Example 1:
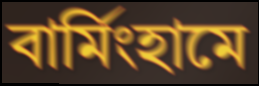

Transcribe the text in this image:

বার্মিংহামে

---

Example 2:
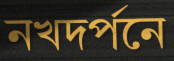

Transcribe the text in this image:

নখদর্পনে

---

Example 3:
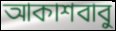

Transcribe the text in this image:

আকাশবাবু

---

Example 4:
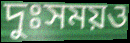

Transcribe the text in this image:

দুঃসময়ও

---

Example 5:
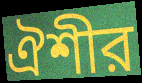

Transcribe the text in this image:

ঐশীর